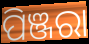
ପିଞ୍ଜରା